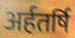
अर्हतर्षि